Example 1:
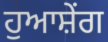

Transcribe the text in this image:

ਹੁਆਸ਼ੇਂਗ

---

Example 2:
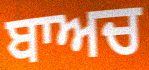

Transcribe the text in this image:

ਬਾਅਚ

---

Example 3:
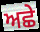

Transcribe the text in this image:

ਅਛੇ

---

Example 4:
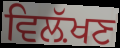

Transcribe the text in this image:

ਵਿਲ਼ੱਖਣ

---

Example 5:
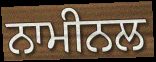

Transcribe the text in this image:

ਨਾਮੀਨਲ